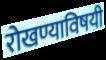
रोखण्याविषयी